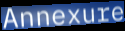
Annexure